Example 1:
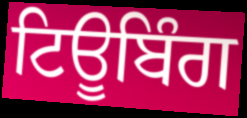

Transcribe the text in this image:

ਟਿਊਬਿੰਗ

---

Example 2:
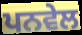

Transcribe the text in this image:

ਪਨਵੇਲ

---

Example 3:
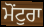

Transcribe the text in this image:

ਮੋਂਟੁਰਾ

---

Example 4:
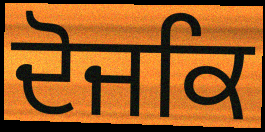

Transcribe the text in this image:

ਦੋਜਕਿ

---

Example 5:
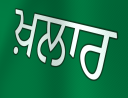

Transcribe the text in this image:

ਖ਼ਲਾਰ